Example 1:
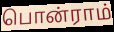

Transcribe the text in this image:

பொன்ராம்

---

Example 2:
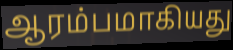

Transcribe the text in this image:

ஆரம்பமாகியது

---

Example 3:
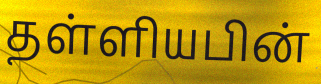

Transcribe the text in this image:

தள்ளியபின்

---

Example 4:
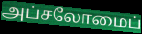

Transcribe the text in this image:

அப்சலோமைப்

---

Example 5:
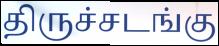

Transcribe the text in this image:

திருச்சடங்கு